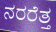
ನರರೆತ್ತ